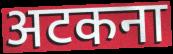
अटकना